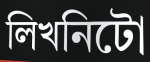
লিখনিটো